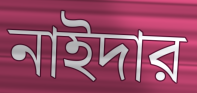
নাইদার